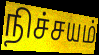
நிச்சயம்